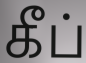
கீப்